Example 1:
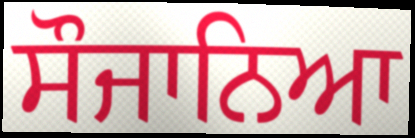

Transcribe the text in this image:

ਸੌਜਾਨਿਆ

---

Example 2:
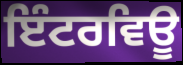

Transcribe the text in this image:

ਇੰਟਰਵਿਊ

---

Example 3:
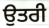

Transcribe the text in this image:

ਉਤਰੀ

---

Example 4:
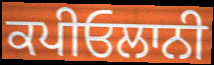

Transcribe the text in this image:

ਕਪੀਓਲਾਨੀ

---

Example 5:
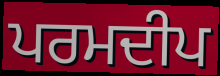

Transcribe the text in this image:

ਪਰਮਦੀਪ